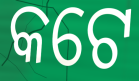
କଟେ